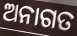
ଅନାଗତ